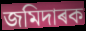
জমিদাৰক